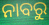
ନାବରୁ